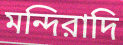
মন্দিরাদি